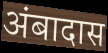
अंबादास